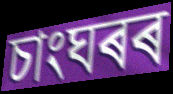
চাংঘৰৰ